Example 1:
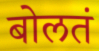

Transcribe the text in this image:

बोलतं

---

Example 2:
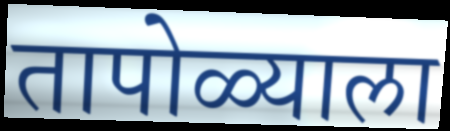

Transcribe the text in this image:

तापोळ्याला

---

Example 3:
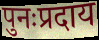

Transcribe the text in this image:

पुनःप्रदाय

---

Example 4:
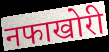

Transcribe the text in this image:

नफाखोरी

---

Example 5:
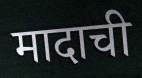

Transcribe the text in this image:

मादाची